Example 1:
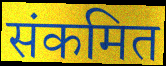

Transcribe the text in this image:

संकमित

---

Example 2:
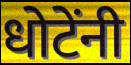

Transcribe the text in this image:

धोटेंनी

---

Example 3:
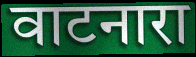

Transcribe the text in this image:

वाटनारा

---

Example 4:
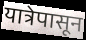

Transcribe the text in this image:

यात्रेपासून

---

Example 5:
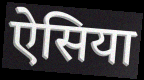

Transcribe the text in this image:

ऐसिया